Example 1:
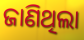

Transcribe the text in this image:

ଜାଣିଥିଲା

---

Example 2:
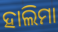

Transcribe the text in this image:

ହାଲିମା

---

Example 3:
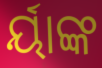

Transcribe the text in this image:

ର୍ୟାଙ୍କ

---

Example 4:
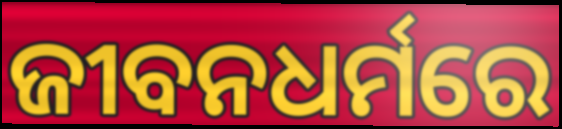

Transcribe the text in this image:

ଜୀବନଧର୍ମରେ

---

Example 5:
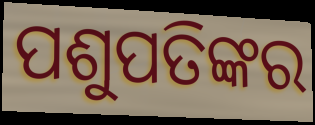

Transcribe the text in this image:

ପଶୁପତିଙ୍କର